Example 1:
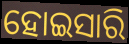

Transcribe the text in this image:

ହୋଇସାରି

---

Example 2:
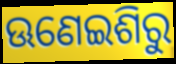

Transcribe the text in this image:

ଊଣେଇଶିରୁ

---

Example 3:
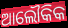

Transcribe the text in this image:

ଆଲୌକିକ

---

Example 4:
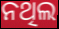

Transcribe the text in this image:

ନଥିଲ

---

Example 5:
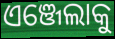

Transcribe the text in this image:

ଏଞ୍ଜେଲାକୁ